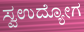
ಸ್ವಉದ್ಯೋಗ